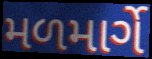
મળમાર્ગે